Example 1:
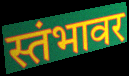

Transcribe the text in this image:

स्तंभावर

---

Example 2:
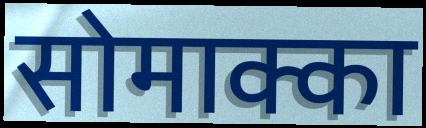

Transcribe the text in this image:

सोमाक्का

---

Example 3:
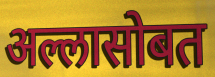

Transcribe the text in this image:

अल्लासोबत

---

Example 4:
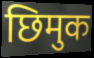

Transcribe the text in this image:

छिमुक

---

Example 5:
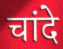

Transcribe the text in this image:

चांदे